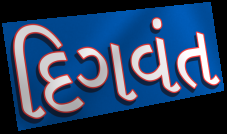
દિગવંત